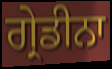
ਗ੍ਰੇਡੀਨਾ